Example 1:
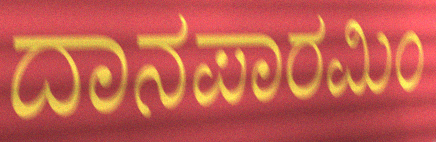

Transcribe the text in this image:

ದಾನಪಾರಮಿಂ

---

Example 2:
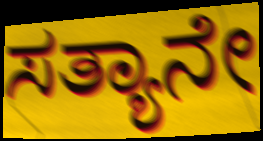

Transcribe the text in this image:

ಸತ್ಯಾನೇ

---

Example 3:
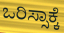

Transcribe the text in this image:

ಒರಿಸ್ಸಾಕ್ಕೆ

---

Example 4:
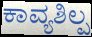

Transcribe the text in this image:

ಕಾವ್ಯಶಿಲ್ಪ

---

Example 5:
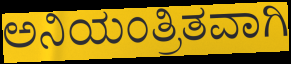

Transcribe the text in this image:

ಅನಿಯಂತ್ರಿತವಾಗಿ